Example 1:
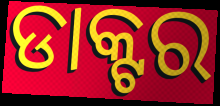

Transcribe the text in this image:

ଡାକ୍ଟର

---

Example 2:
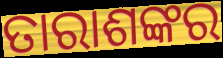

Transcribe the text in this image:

ତାରାଶଙ୍କର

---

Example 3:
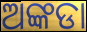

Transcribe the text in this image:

ଅଙ୍କଡା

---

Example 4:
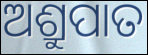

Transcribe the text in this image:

ଅଶ୍ରୁପାତ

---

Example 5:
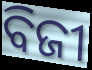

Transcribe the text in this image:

ବିଜୀ